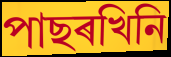
পাছৰখিনি